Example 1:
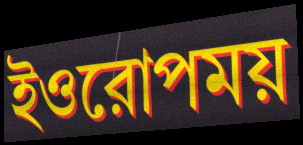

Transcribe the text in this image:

ইওরোপময়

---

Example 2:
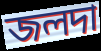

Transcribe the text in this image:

জলদা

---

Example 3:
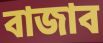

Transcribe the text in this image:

বাজাব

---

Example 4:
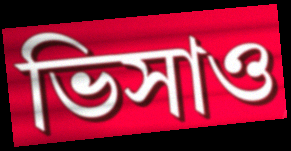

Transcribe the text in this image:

ভিসাও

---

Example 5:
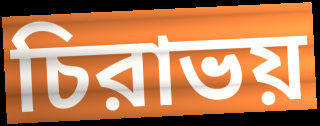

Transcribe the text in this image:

চিরাভয়